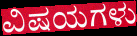
ವಿಷಯಗಳು